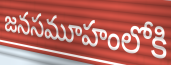
జనసమూహంలోకి